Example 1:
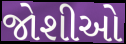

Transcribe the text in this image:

જોશીઓ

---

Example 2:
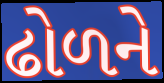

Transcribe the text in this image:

ઢોળને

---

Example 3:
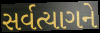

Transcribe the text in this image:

સર્વત્યાગને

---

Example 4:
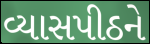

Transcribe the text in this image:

વ્યાસપીઠને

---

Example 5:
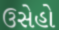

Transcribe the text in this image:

ઉસેહો